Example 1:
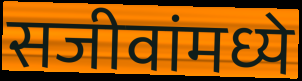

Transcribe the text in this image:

सजीवांमध्ये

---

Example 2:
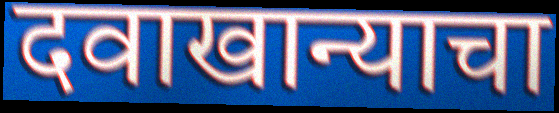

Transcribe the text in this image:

दवाखान्याचा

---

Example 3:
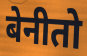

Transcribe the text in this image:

बेनीतो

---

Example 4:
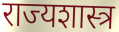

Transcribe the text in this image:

राज्यशास्त्र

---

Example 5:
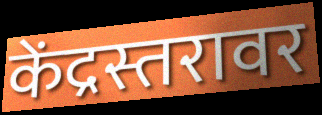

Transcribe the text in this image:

केंद्रस्तरावर